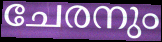
ചേരനും